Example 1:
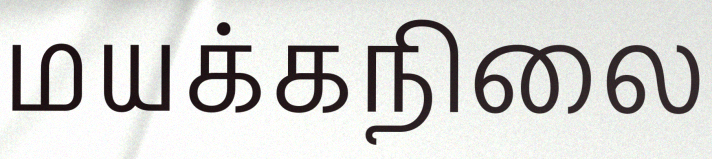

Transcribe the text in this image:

மயக்கநிலை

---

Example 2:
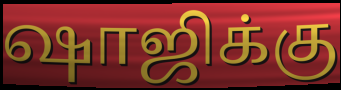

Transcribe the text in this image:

ஷாஜிக்கு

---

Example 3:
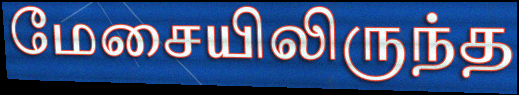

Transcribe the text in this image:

மேசையிலிருந்த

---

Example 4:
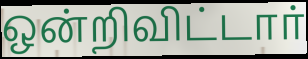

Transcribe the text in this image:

ஒன்றிவிட்டார்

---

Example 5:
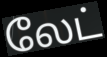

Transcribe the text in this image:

லேட்